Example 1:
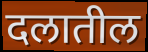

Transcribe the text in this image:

दलातील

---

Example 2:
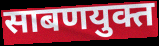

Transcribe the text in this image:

साबणयुक्त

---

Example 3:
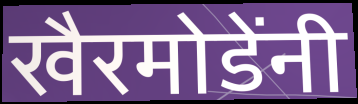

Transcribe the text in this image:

खैरमोडेंनी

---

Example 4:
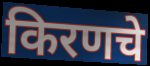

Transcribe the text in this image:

किरणचे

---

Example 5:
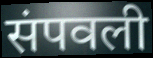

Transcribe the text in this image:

संपवली